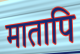
मातापि